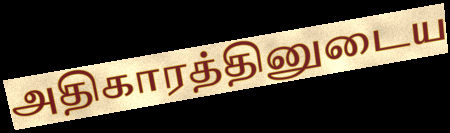
அதிகாரத்தினுடைய